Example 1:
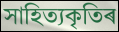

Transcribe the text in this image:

সাহিত্য়কৃতিৰ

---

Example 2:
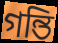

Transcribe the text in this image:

গন্তি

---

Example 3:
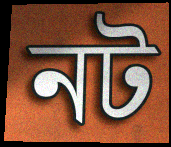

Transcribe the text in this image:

নট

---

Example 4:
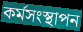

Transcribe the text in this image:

কৰ্মসংস্থাপন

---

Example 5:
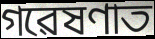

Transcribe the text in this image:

গৱেষণাত